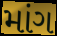
માંગ